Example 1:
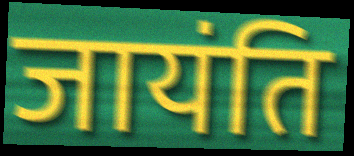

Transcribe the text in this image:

जायंति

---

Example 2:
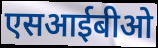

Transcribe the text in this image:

एसआईबीओ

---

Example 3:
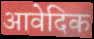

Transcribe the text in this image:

आवेदिक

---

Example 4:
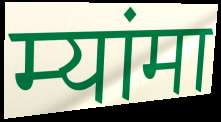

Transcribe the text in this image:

म्यांमा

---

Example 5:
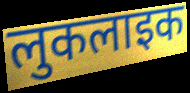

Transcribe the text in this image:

लुकलाइक